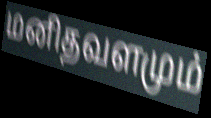
மனிதவளமும்